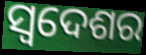
ସ୍ଵଦେଶର